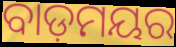
ବାଡ଼ମୟର